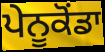
ਪੇਨੂਕੋਂਡਾ